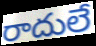
రాదులే